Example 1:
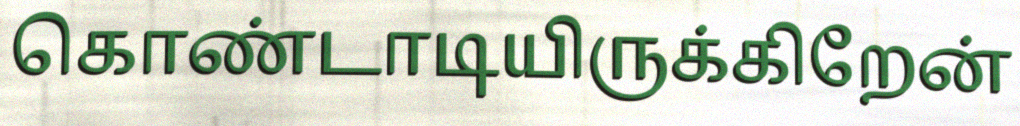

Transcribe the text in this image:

கொண்டாடியிருக்கிறேன்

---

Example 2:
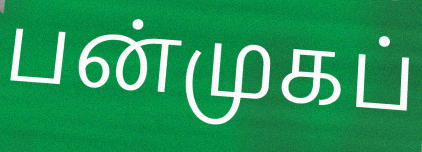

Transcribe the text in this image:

பன்முகப்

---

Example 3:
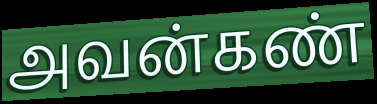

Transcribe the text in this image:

அவன்கண்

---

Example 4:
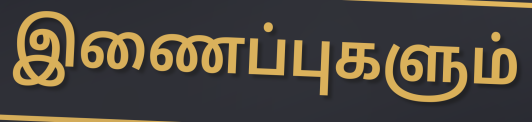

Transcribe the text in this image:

இணைப்புகளும்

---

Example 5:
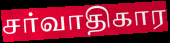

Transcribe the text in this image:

சர்வாதிகார